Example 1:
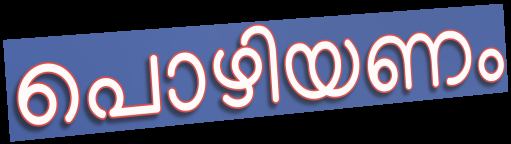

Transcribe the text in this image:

പൊഴിയണം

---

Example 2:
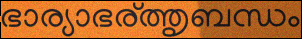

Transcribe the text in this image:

ഭാര്യാഭര്ത്തൃബന്ധം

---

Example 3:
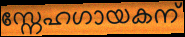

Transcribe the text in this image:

സ്നേഹഗായകന്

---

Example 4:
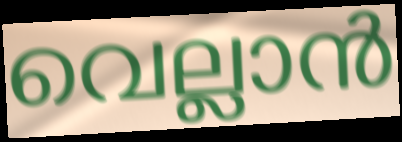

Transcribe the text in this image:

വെല്ലാൻ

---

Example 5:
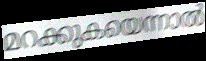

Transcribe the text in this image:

മറക്കുകയെന്നാൽ